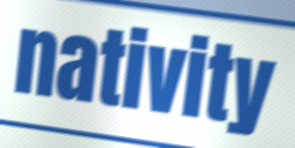
nativity